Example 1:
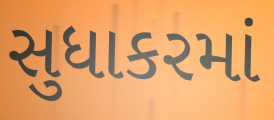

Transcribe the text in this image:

સુધાકરમાં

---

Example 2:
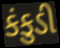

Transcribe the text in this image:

કંકુડી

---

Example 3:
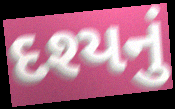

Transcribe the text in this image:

દશ્યનું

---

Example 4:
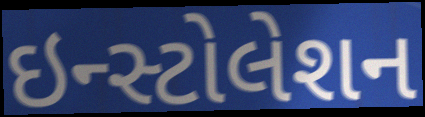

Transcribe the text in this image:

ઇન્સ્ટોલેશન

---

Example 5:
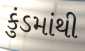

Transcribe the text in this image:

કુંડમાંથી